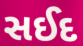
સઈદ